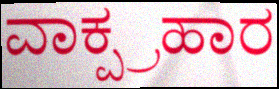
ವಾಕ್ಪ್ರಹಾರ